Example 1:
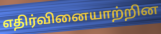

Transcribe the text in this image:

எதிர்வினையாற்றின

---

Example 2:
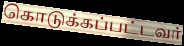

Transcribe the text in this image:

கொடுக்கப்பட்டவர்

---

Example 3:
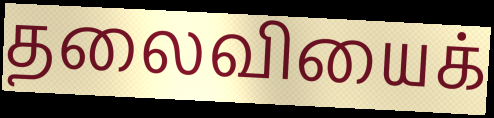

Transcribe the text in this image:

தலைவியைக்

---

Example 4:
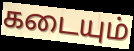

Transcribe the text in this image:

கடையும்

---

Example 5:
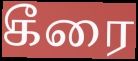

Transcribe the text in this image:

கீரை